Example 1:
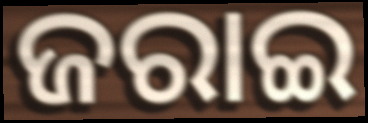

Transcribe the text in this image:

ଜରାଇ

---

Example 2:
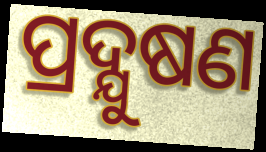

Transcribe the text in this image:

ପ୍ରଦ୍ଯୁଷଣ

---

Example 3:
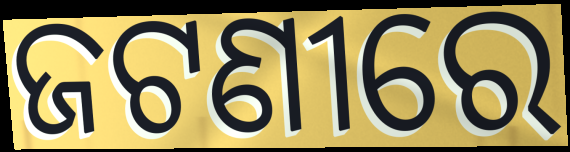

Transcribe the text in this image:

ଜଟଣୀରେ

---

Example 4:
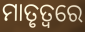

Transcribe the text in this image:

ମାତୃତ୍ୱରେ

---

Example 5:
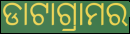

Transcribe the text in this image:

ଡାଟାଗ୍ରାମର